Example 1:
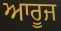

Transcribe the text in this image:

ਆਰੂਜ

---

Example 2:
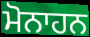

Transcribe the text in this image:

ਮੋਨਾਹਨ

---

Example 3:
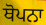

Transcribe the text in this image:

ਥੋਪਨਾ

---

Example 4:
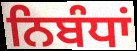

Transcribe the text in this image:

ਨਿਬੰਧਾਂ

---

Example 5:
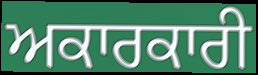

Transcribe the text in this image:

ਅਕਾਰਕਾਰੀ